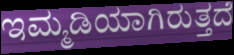
ಇಮ್ಮಡಿಯಾಗಿರುತ್ತದೆ